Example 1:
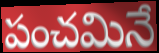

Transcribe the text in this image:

పంచమినే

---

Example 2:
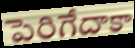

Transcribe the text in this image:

పెరిగేదాకా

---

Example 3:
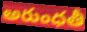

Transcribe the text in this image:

అరుంధతీ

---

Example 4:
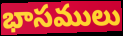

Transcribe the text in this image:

భాసములు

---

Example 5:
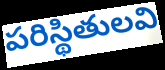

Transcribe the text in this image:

పరిస్థితులవి